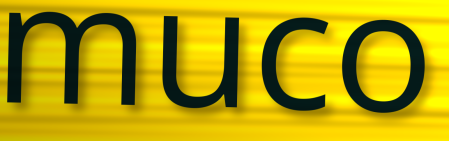
muco